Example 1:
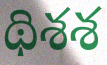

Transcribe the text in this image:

థిశశ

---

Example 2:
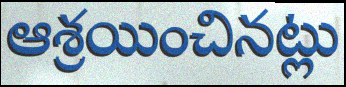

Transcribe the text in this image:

ఆశ్రయించినట్లు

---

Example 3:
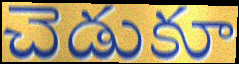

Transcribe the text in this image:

చెడుకూ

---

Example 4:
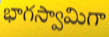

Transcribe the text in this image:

భాగస్వామిగా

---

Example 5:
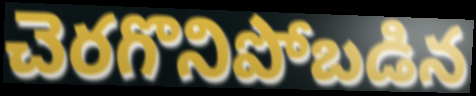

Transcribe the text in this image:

చెరగొనిపోబడిన